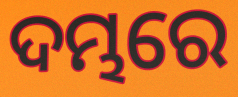
ଦମ୍ଭରେ